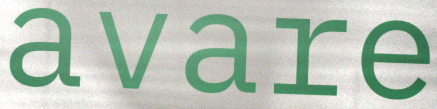
avare